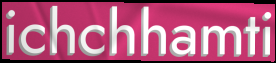
ichchhamti